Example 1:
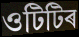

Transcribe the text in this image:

ওটিটিৰ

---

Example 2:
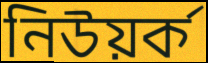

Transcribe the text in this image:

নিউয়ৰ্ক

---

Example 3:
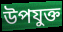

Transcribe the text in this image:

উপযুক্ত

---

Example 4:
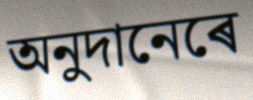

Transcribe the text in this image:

অনুদানেৰে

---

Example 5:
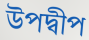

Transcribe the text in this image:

উপদ্বীপ